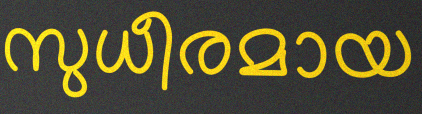
സുധീരമായ